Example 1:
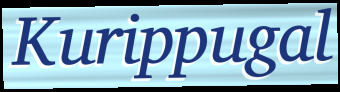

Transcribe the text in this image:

Kurippugal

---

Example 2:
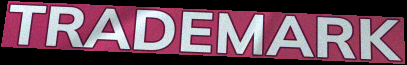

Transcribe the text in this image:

TRADEMARK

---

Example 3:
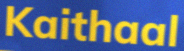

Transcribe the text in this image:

Kaithaal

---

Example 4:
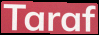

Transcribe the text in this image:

Taraf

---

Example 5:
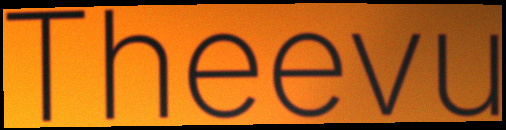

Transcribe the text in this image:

Theevu